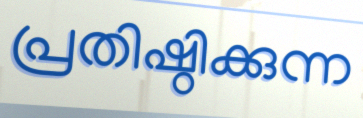
പ്രതിഷ്ഠിക്കുന്ന